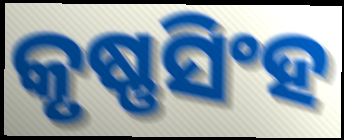
କୃଷ୍ଣସିଂହ